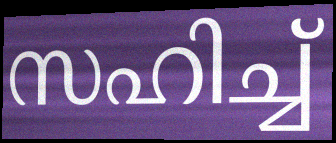
സഹിച്ച്